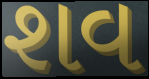
શવ